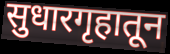
सुधारगृहातून